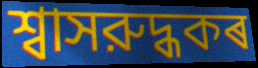
শ্বাসৰুদ্ধকৰ